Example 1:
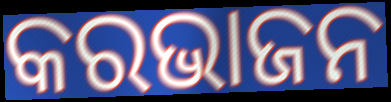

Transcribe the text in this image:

କରଭାଜନ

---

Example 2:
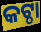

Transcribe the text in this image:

କଟ୍ଠା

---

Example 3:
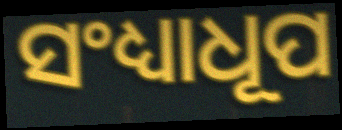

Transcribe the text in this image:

ସଂଧ୍ୟାଧୂପ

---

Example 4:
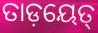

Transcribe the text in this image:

ତାଡ଼ୟେତ୍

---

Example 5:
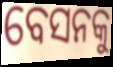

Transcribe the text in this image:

ବେସନକୁ